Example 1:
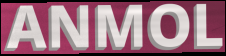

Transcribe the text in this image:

ANMOL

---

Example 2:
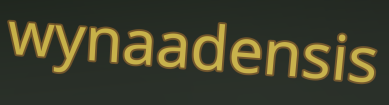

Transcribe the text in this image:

wynaadensis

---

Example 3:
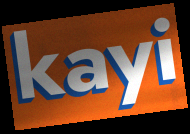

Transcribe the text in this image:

kayi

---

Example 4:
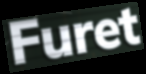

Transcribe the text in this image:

Furet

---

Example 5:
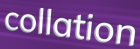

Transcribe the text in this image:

collation